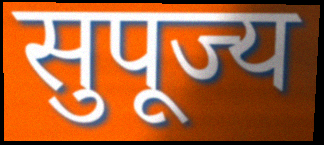
सुपूज्य